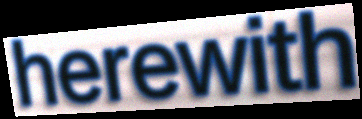
herewith